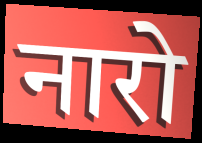
नारो